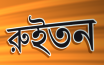
রুইতন